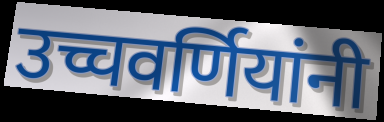
उच्चवर्णियांनी